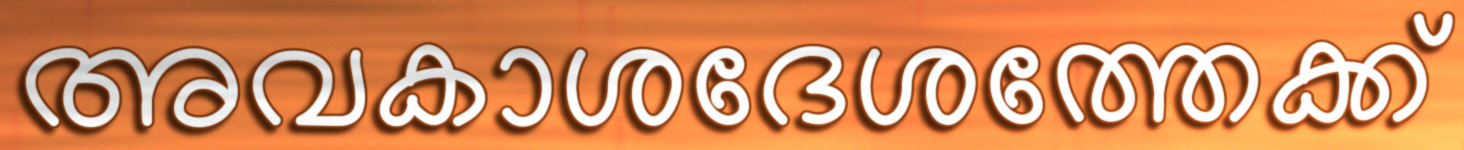
അവകാശദേശത്തേക്ക്